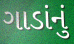
ગાડાંનું